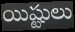
యిష్టులు